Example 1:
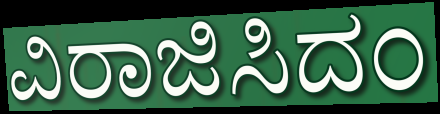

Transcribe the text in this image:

ವಿರಾಜಿಸಿದಂ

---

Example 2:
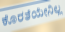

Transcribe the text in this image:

ಕೊರತೆಯೇನಿಲ್ಲ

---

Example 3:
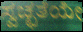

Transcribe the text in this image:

ಸ್ವಚ್ಛತೆಯೇ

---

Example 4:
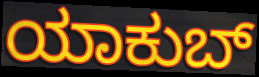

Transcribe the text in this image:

ಯಾಕುಬ್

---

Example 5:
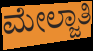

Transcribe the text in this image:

ಮೇಲ್ಜಾತಿ